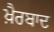
ਖ਼ੈਰਬਾਦ